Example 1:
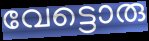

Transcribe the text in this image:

വേട്ടൊരു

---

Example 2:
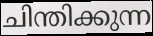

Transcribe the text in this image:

ചിന്തിക്കുന്ന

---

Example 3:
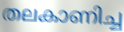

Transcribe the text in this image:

തലകാണിച്ച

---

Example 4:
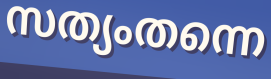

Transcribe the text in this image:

സത്യംതന്നെ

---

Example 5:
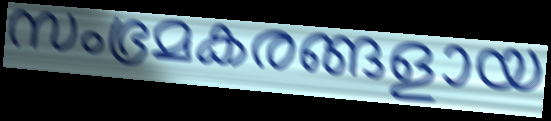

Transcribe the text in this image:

സംഭ്രമകരങ്ങളായ